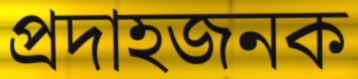
প্রদাহজনক